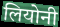
लियोनी